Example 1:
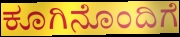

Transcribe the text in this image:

ಕೂಗಿನೊಂದಿಗೆ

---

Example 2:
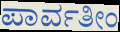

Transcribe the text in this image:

ಪಾರ್ವತೀಂ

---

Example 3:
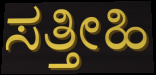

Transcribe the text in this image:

ಸತ್ತೀಹಿ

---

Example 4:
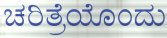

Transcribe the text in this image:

ಚರಿತ್ರೆಯೊಂದು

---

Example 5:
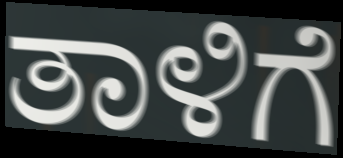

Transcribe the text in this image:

ತಾಳಿಗೆ